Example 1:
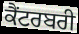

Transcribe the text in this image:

ਕੈਂਟਰਬਰੀ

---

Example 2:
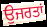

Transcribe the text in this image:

ਉਜਰਤਾਂ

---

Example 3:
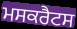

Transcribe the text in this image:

ਮਸਕਰੈਟਸ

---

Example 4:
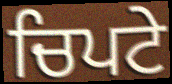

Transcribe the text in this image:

ਚਿਪਟੇ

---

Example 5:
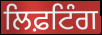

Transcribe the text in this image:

ਲਿਫ਼ਟਿੰਗ